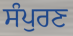
ਸੰਪੁਰਣ